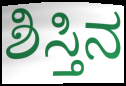
ಶಿಸ್ತಿನ